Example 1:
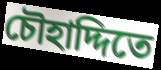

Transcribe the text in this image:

চৌহাদ্দিতে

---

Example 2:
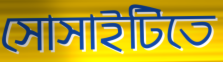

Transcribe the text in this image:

সোসাইটিতে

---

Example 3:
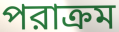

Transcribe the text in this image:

পরাক্রম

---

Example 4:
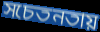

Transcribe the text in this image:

সচেতনতায়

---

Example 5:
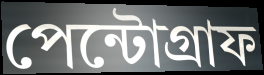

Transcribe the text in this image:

পেন্টোগ্রাফ